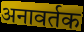
अनावर्तक